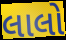
લાલો